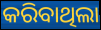
କରିବାଥିଲା